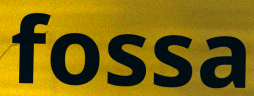
fossa